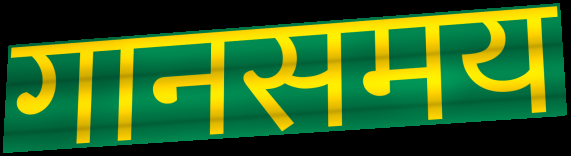
गानसमय